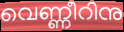
വെണ്ണീറിനു